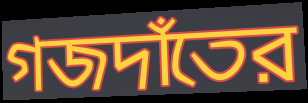
গজদাঁতের